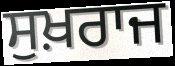
ਸੁਖ਼ਰਾਜ